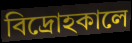
বিদ্রোহকালে